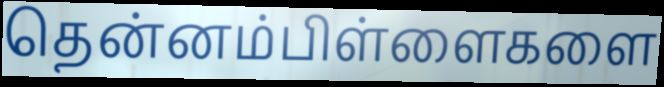
தென்னம்பிள்ளைகளை